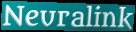
Neuralink